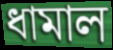
ধামাল